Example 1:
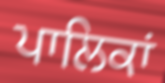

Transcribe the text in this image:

ਪਾਲਿਕਾਂ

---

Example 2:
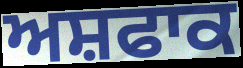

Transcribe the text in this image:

ਅਸ਼ਫਾਕ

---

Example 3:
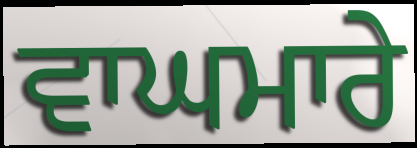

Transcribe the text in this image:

ਵਾਘਮਾਰੇ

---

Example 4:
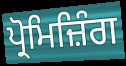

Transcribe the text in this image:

ਪ੍ਰੋਮਿਜ਼ਿੰਗ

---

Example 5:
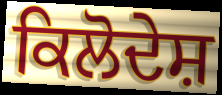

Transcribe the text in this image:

ਕਿਲੋਦੇਸ਼